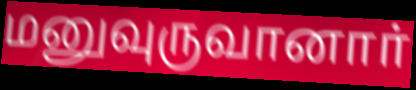
மனுவுருவானார்